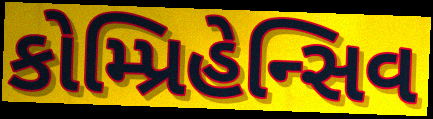
કોમ્પ્રિહેન્સિવ